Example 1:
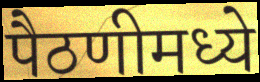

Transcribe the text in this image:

पैठणीमध्ये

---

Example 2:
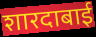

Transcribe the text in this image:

शारदाबाई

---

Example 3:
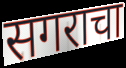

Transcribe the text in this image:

सगराचा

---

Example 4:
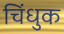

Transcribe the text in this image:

चिंधुक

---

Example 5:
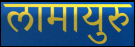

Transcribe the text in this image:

लामायुरु